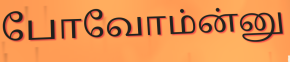
போவோம்ன்னு